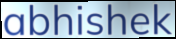
abhishek